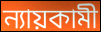
ন্যায়কামী